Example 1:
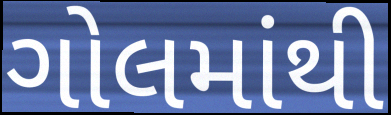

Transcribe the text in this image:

ગોલમાંથી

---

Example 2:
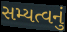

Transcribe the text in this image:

સમ્યત્વનું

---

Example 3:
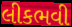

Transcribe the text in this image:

લીકભવી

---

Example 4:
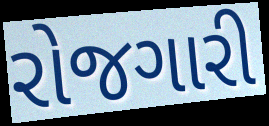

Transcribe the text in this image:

રોજગારી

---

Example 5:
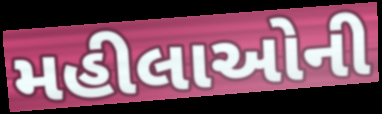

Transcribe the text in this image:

મહીલાઓની